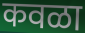
कवळा